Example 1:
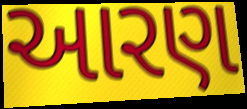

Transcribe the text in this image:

આરણ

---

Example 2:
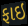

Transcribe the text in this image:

ફાઇ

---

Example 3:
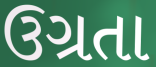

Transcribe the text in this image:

ઉગ્રતા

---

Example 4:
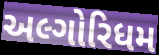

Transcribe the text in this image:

અલ્ગોરિધમ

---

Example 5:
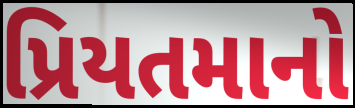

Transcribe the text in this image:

પ્રિયતમાનો